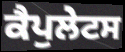
ਕੈਪੁਲੇਟਸ